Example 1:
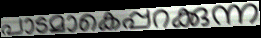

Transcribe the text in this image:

പാടമാകെപ്പറക്കുന്ന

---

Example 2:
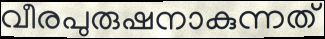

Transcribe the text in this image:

വീരപുരുഷനാകുന്നത്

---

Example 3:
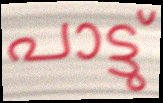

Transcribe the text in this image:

പാട്ടു്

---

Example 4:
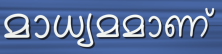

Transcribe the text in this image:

മാധ്യമമാണ്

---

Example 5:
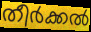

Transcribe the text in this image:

തീർക്കൽ